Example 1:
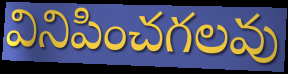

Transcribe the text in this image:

వినిపించగలవు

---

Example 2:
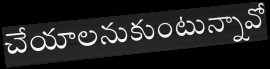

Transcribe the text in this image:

చేయాలనుకుంటున్నావో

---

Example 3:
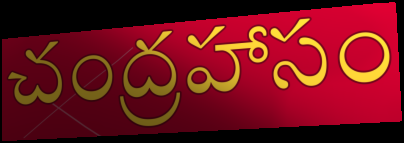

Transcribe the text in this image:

చంద్రహాసం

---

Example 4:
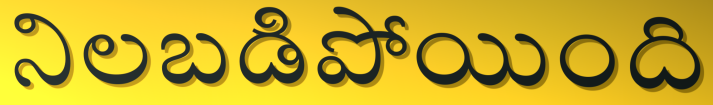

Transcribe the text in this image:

నిలబడిపోయింది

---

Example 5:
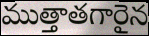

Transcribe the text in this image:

ముత్తాతగారైన